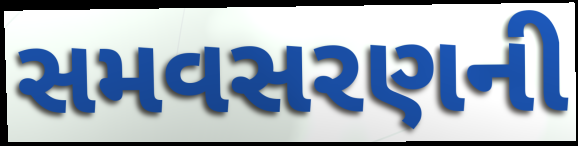
સમવસરણની